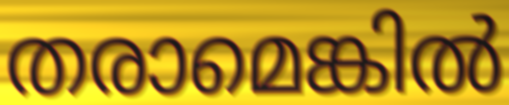
തരാമെങ്കിൽ